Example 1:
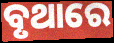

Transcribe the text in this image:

ବୃଥାରେ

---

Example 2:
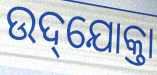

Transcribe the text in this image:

ଉଦ୍‌ଯୋକ୍ତା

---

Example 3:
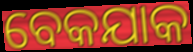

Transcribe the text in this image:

ବେକଯାକ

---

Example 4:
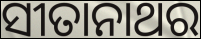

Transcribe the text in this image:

ସୀତାନାଥର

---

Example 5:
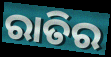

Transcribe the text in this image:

ରାତିର